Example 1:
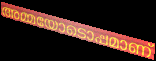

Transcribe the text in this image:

അമ്മയോടൊപ്പമാണ്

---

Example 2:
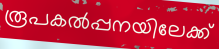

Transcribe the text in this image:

രൂപകൽപ്പനയിലേക്ക്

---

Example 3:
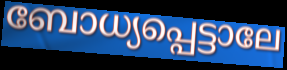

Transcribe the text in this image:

ബോധ്യപ്പെട്ടാലേ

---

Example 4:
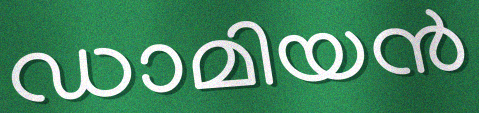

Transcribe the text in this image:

ഡാമിയൻ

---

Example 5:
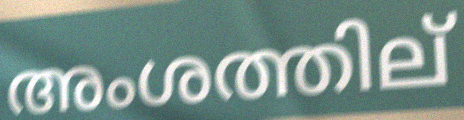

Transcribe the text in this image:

അംശത്തില്